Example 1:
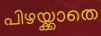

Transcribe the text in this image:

പിഴയ്ക്കാതെ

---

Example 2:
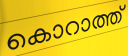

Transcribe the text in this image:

കൊറാത്ത്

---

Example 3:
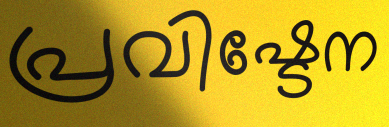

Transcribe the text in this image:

പ്രവിഷ്ടേന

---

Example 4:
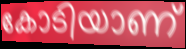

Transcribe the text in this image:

കോടിയാണ്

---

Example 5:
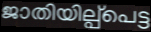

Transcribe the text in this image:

ജാതിയില്പ്പെട്ട